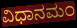
ವಿಧಾನಮಂ